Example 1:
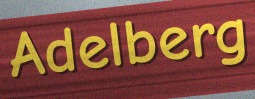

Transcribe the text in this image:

Adelberg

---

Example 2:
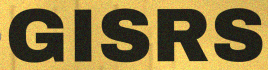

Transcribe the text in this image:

GISRS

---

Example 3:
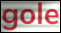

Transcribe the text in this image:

gole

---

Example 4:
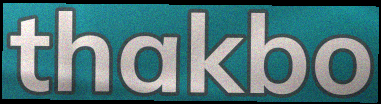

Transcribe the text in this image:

thakbo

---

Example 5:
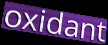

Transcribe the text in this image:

oxidant